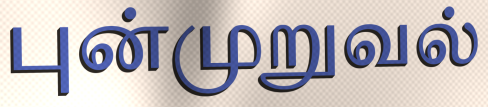
புன்முறுவல்